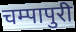
चम्पापुरी